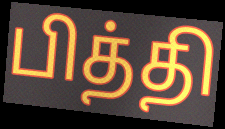
பித்தி